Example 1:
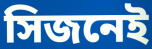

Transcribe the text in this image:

সিজনেই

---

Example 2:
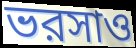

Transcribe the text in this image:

ভরসাও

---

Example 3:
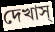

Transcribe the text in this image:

দেখাস্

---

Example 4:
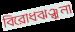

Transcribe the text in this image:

বিরোধঝঞ্ঝনা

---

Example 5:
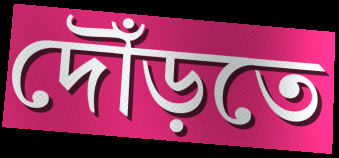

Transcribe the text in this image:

দৌঁড়তে